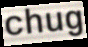
chug